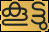
കൂട്ടു